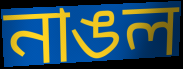
নাঙল